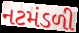
નટમંડળી